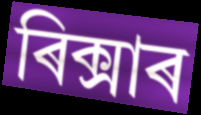
ৰিক্সাৰ